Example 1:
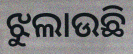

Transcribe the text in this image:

ଝୁଲାଉଛି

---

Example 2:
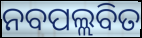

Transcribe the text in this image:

ନବପଲ୍ଲବିତ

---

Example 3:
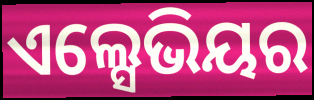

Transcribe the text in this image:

ଏଲ୍ସେଭିୟର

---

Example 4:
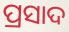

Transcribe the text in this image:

ପ୍ରସାଦ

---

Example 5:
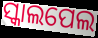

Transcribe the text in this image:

ସ୍କାଲପେଲ